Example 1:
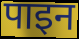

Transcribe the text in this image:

पाइन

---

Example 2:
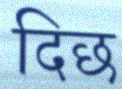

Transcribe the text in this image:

दिछ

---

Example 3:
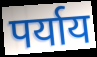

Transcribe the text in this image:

पर्याय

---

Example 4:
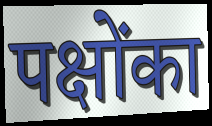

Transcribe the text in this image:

पक्षोंका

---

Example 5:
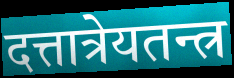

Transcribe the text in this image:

दत्तात्रेयतन्त्र